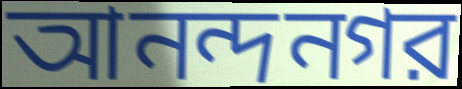
আনন্দনগর